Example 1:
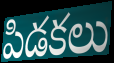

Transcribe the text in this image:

పిడకలు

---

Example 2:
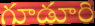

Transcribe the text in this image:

గూడూరి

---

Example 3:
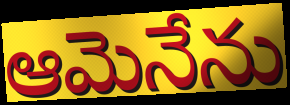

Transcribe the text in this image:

ఆమెనేను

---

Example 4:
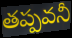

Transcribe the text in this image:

తప్పవనీ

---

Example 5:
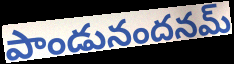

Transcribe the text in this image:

పాండునందనమ్